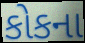
કોકના